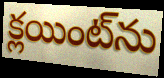
క్లయింట్‌ను